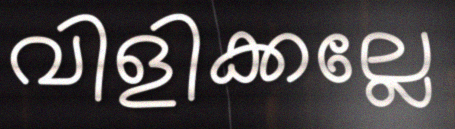
വിളിക്കല്ലേ